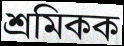
শ্ৰমিকক